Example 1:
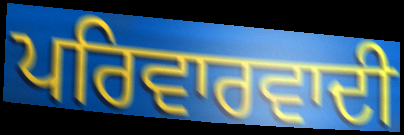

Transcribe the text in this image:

ਪਰਿਵਾਰਵਾਦੀ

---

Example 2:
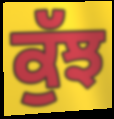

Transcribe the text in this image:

ਕੁੱਝ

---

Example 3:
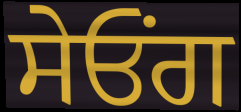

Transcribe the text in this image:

ਸੇਓਂਗ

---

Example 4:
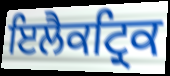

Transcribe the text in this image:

ਇਲੈਕਟ੍ਰਿਕ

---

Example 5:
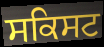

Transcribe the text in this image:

ਸਕਿਸਟ